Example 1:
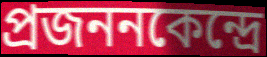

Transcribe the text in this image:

প্রজননকেন্দ্রে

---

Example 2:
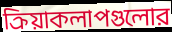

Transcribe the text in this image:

ক্রিয়াকলাপগুলোর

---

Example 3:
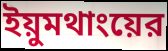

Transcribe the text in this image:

ইয়ুমথাংয়ের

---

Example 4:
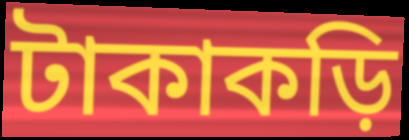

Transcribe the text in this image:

টাকাকড়ি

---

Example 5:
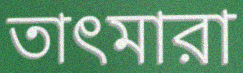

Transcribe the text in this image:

তাৎমারা